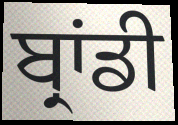
ਬ੍ਰਾਂਡੀ